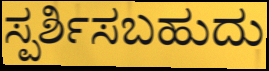
ಸ್ಪರ್ಶಿಸಬಹುದು